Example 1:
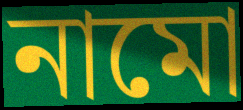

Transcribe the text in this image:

নামো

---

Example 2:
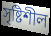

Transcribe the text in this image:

সৃষ্টিশীল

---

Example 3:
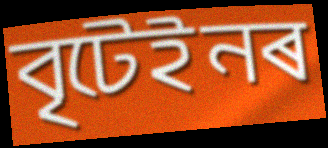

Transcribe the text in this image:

বৃটেইনৰ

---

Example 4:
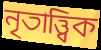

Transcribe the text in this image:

নৃতাত্ত্বিক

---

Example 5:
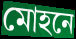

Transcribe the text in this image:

মোহনে